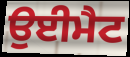
ਉਈਮੈਟ